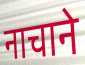
नाचाने